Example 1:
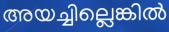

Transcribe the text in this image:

അയച്ചില്ലെങ്കിൽ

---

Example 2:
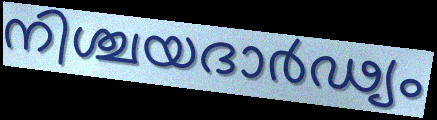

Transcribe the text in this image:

നിശ്ചയദാർഢ്യം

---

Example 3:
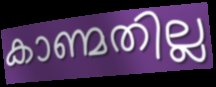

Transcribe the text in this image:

കാണ്മതില്ല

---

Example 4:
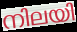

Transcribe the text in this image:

നിലയി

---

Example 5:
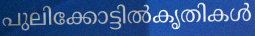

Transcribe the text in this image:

പുലിക്കോട്ടിൽകൃതികൾ